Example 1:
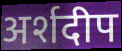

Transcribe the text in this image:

अर्शदीप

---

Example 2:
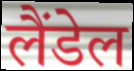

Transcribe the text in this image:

लैंडेल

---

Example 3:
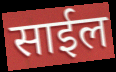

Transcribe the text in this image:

साईल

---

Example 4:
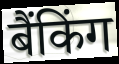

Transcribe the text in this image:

बैंकिंग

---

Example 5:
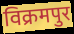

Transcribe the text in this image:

विक्रमपुर